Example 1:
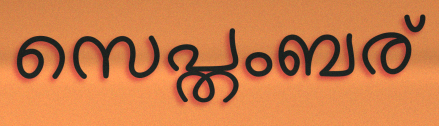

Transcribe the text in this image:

സെപ്തംബര്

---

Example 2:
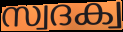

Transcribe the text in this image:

സ്വദക്വ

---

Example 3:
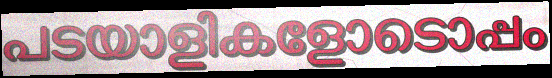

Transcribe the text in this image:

പടയാളികളോടൊപ്പം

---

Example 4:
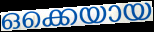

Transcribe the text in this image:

ഒക്കെയായ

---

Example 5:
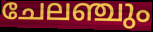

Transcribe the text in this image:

ചേലഞ്ചും